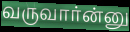
வருவார்ன்னு